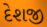
દેશજી